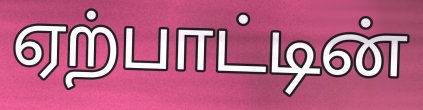
ஏற்பாட்டின்